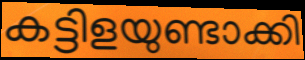
കട്ടിളയുണ്ടാക്കി